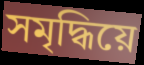
সমৃদ্ধিয়ে